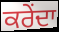
ਕਰੇਂਦਾ